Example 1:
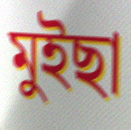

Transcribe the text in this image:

মুইছা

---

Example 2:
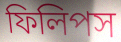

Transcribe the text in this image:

ফিলিপস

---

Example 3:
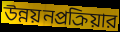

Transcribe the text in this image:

উন্নয়নপ্রক্রিয়ার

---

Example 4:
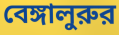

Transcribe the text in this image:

বেঙ্গালুরুর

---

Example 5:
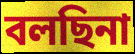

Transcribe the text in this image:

বলছিনা